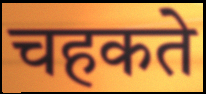
चहकते